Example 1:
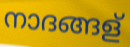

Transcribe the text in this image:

നാദങ്ങള്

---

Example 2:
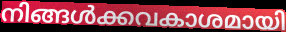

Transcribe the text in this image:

നിങ്ങൾക്കവകാശമായി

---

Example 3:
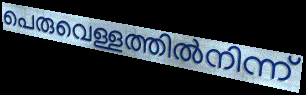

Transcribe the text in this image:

പെരുവെള്ളത്തിൽനിന്ന്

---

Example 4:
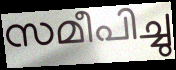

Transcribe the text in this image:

സമീപിച്ചു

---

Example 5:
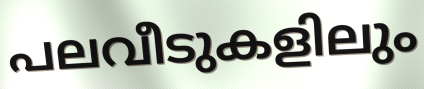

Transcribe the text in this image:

പലവീടുകളിലും